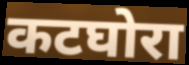
कटघोरा